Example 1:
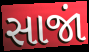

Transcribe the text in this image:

સાજાં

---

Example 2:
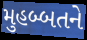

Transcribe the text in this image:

મુહબ્બતને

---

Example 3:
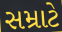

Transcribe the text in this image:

સમ્રાટે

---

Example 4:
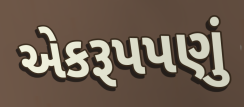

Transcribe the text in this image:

એકરૂપપણું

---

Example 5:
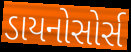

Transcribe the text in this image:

ડાયનોસોર્સ